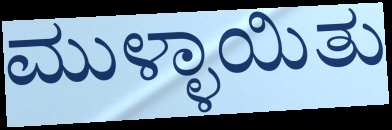
ಮುಳ್ಳಾಯಿತು